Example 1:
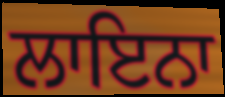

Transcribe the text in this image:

ਲਾਇਨਾ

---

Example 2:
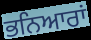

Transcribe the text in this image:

ਭਨਿਆਰਾਂ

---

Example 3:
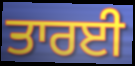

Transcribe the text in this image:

ਤਾਰਈ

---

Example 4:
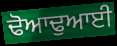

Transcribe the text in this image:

ਢੋਆਢੁਆਈ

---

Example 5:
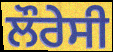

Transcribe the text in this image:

ਲੌਰੇਸੀ